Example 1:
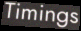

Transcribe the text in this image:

Timings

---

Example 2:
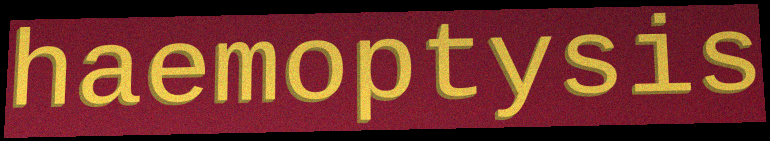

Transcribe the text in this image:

haemoptysis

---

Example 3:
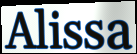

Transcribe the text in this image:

Alissa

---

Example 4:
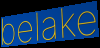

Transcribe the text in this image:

belake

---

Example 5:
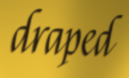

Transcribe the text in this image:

draped